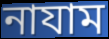
নাযাম